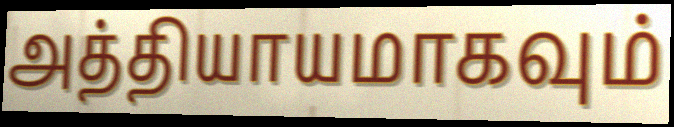
அத்தியாயமாகவும்